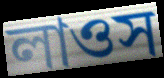
লাওস